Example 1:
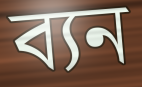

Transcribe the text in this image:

ব্যন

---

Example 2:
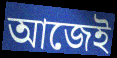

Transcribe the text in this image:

আজেই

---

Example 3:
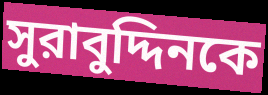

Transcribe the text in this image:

সুরাবুদ্দিনকে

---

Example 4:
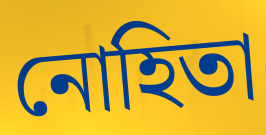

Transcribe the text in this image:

নোহিতা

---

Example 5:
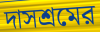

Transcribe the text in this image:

দাসশ্রমের